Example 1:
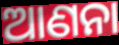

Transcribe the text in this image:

ଆଣନା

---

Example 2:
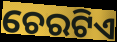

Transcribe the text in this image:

ଚେରଟିଏ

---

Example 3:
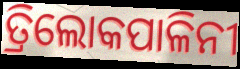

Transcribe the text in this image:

ତ୍ରିଲୋକପାଳିନୀ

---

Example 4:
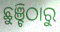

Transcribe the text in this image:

ଛୁଞ୍ଚିଠାରୁ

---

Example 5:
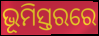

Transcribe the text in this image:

ଭୂମିସ୍ତରରେ